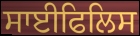
ਸਾਈਫਿਲਿਸ